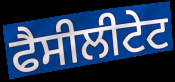
ਫੈਸੀਲੀਟੇਟ